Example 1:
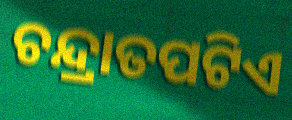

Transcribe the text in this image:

ଚନ୍ଦ୍ରାତପଟିଏ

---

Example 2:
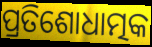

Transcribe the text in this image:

ପ୍ରତିଶୋଧାତ୍ମକ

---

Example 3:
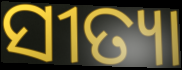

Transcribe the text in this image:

ସୀତ୍ୟା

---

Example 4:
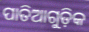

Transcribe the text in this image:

ପାତିଆଗୁଡ଼ିକ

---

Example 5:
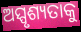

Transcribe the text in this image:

ଅସ୍ପୃଶ୍ୟତାକୁ